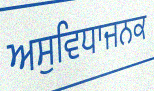
ਅਸੁਵਿਧਾਜਨਕ